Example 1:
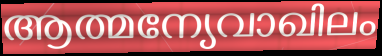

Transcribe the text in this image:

ആത്മന്യേവാഖിലം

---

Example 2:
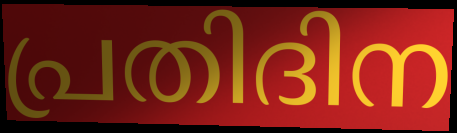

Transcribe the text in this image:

പ്രതിദിന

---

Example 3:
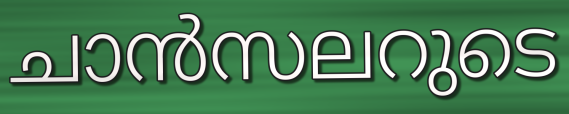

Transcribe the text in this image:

ചാൻസലറുടെ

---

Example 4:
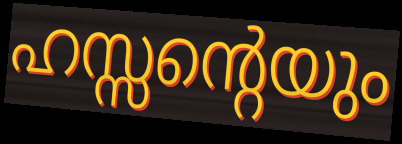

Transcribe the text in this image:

ഹസ്സന്റെയും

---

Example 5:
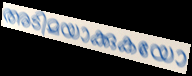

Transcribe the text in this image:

അടിമയാക്കുകയോ